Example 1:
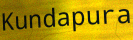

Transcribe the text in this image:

Kundapura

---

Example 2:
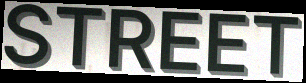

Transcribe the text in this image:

STREET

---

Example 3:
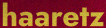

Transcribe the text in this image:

haaretz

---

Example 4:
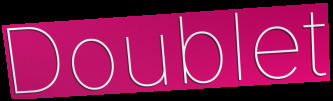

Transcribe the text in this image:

Doublet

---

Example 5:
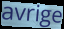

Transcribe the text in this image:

avrige